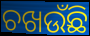
ଚଖଉଁଛି